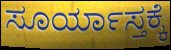
ಸೂರ್ಯಾಸ್ತಕ್ಕೆ